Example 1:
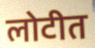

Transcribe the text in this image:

लोटीत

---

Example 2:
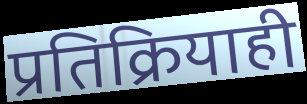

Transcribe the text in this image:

प्रतिक्रियाही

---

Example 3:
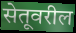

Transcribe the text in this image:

सेतूवरील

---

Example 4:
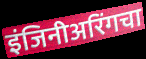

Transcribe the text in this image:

इंजिनीअरिंगचा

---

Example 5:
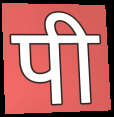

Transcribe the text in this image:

पी